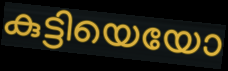
കുട്ടിയെയോ